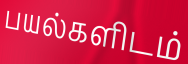
பயல்களிடம்